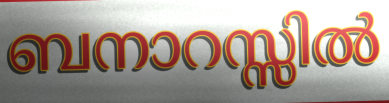
ബനാറസ്സിൽ